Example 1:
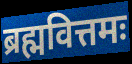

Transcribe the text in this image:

ब्रह्मवित्तमः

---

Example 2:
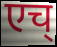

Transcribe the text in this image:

एच्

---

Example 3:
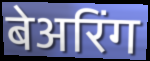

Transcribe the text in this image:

बेअरिंग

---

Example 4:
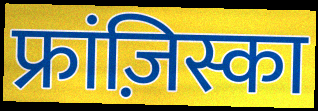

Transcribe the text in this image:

फ्रांज़िस्का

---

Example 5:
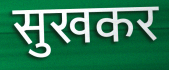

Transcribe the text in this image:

सुखकर